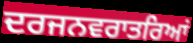
ਦਰਜਨਵਰਾਤਰਿਆਂ